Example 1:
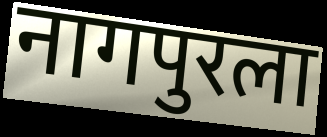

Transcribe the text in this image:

नागपुरला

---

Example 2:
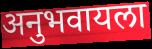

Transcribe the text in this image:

अनुभवायला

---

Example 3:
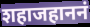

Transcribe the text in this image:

शहाजहाननं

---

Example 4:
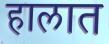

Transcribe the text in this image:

हालात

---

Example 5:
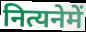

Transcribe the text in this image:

नित्यनेमें